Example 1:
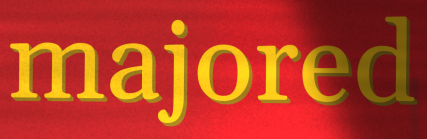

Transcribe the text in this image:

majored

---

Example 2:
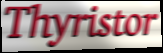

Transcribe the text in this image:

Thyristor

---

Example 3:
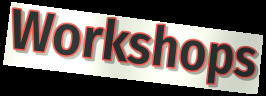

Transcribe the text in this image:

Workshops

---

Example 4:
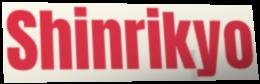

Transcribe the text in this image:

Shinrikyo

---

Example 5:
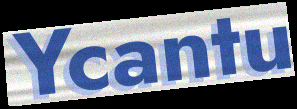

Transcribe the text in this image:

Ycantu